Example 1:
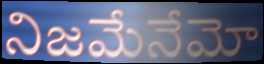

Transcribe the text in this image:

నిజమేనేమో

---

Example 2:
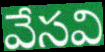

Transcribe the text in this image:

వేసవి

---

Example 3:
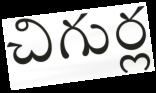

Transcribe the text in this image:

చిగుర్ల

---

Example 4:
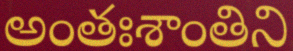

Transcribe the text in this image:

అంతఃశాంతిని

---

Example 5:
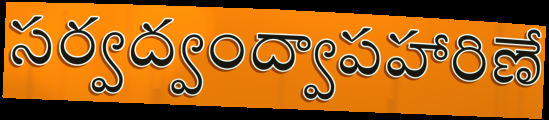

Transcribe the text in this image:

సర్వద్వంద్వాపహారిణే